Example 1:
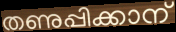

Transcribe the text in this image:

തണുപ്പിക്കാന്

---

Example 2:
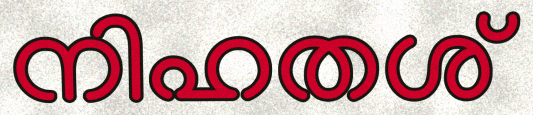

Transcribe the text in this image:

നിഹതശ്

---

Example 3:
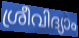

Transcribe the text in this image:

ശ്രീവിദ്യാം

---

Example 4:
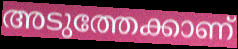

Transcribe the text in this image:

അടുത്തേക്കാണ്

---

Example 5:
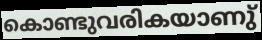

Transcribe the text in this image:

കൊണ്ടുവരികയാണു്